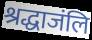
श्रद्धाजंलि